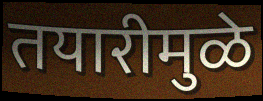
तयारीमुळे